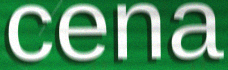
cena